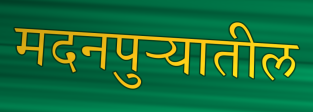
मदनपुऱ्यातील